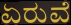
ಏರುವೆ